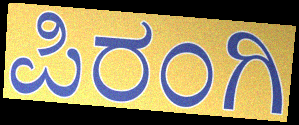
ಪಿರಂಗಿ